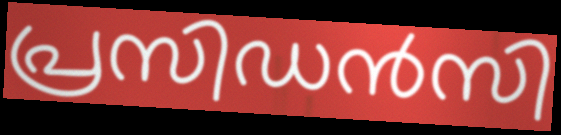
പ്രസിഡൻസി